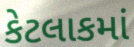
કેટલાકમાં